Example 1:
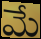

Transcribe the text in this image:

మే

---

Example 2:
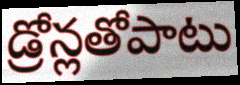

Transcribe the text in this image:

డ్రోన్లతోపాటు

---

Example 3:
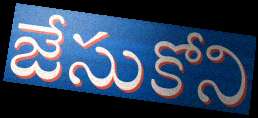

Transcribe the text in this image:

జేసుకోని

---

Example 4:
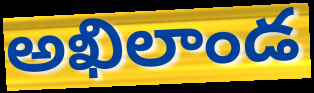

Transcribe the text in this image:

అఖిలాండ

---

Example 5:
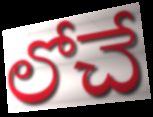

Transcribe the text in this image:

లోచే